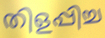
തിളപ്പിച്ച